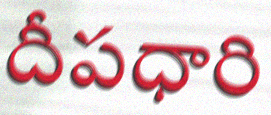
దీపధారి